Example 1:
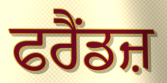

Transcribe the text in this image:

ਫਰੈਂਡਜ਼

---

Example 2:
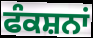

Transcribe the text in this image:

ਫੰਕਸ਼ਨਾਂ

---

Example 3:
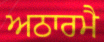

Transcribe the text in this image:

ਅਠਾਰਮੈ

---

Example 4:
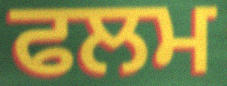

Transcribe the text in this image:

ਫਲਮ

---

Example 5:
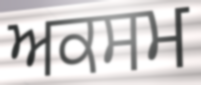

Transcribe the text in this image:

ਅਕਸਮ